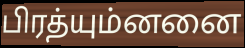
பிரத்யும்னனை